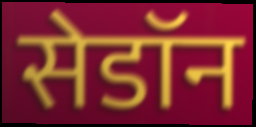
सेडॉन